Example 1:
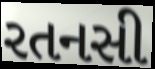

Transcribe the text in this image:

રતનસી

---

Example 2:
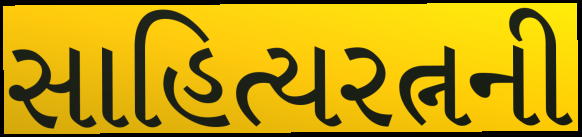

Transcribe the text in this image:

સાહિત્યરત્નની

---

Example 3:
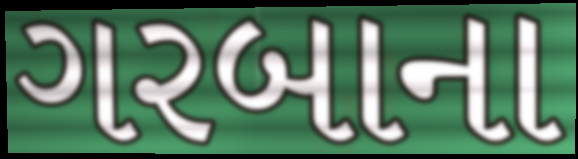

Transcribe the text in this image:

ગરબાના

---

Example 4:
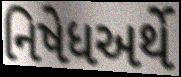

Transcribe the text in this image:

નિષેધઅર્થે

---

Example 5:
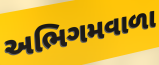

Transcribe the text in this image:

અભિગમવાળા